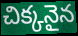
చిక్కనైన